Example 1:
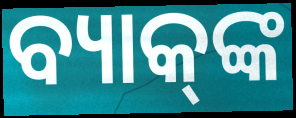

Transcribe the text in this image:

ବ୍ୟାକ୍‍ଙ୍କ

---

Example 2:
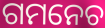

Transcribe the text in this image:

ଗମନେଚ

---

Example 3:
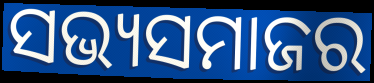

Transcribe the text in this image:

ସଭ୍ୟସମାଜର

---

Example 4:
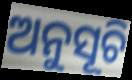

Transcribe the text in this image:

ଅନୁସୂଚି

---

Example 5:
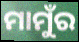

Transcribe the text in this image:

ମାମୁଁର